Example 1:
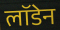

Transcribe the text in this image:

लॉडेन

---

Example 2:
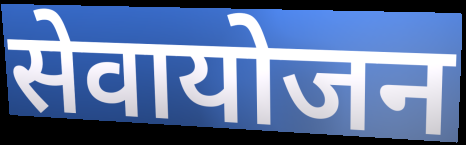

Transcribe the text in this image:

सेवायोजन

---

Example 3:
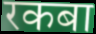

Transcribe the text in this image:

रकबा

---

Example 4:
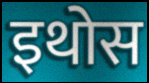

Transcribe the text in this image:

इथोस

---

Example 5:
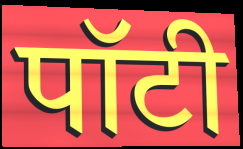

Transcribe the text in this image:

पॉटी